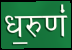
ध॒रुणं॑